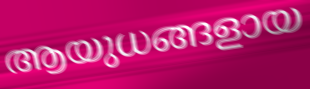
ആയുധങ്ങളായ